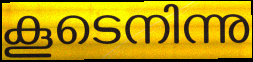
കൂടെനിന്നു